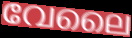
വേലൈ